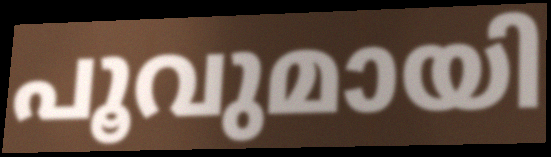
പൂവുമായി